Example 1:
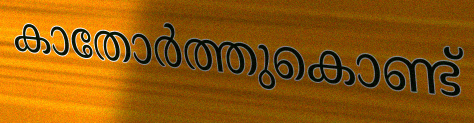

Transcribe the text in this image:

കാതോർത്തുകൊണ്ട്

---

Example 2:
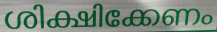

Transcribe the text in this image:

ശിക്ഷിക്കേണം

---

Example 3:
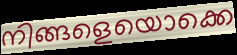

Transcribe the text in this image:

നിങ്ങളെയൊക്കെ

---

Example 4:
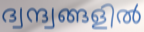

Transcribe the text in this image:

ദ്വന്ദ്വങ്ങളിൽ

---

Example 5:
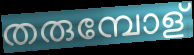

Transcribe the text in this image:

തരുമ്പോള്